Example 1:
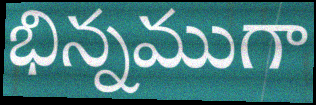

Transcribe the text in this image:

భిన్నముగా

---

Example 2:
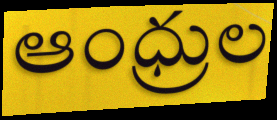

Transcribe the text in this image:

ఆంధ్రుల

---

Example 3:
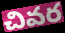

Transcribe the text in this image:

చివర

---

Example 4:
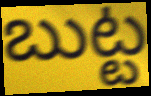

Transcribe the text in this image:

బుట్ట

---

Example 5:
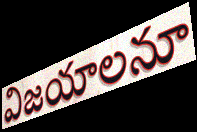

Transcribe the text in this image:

విజయాలనూ